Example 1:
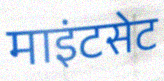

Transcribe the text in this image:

माइंटसेट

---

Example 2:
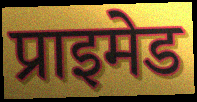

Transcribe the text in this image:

प्राइमेड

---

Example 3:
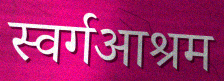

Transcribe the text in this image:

स्वर्गआश्रम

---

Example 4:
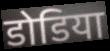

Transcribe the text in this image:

डोडिया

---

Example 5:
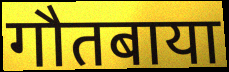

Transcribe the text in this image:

गौतबाया